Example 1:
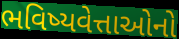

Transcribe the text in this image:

ભવિષ્યવેત્તાઓનો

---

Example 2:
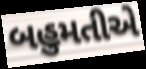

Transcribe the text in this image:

બહુમતીએ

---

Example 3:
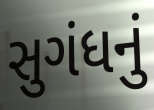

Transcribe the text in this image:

સુગંધનું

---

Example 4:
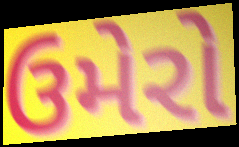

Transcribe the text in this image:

ઉમેરો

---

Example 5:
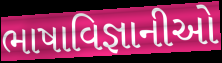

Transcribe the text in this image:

ભાષાવિજ્ઞાનીઓ